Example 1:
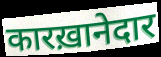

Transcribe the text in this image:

कारख़ानेदार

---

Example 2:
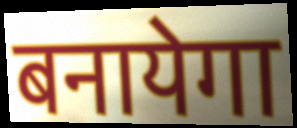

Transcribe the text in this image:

बनायेगा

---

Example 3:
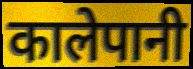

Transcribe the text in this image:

कालेपानी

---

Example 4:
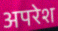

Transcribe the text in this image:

अपरेश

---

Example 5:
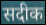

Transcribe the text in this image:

सदीक